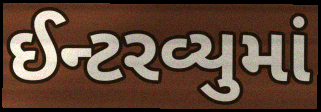
ઈન્ટરવ્યુમાં